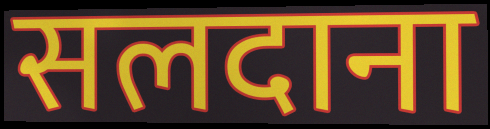
सलदाना